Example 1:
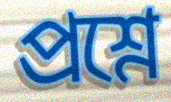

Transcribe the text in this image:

প্ৰশ্নে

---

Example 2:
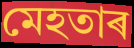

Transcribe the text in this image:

মেহতাৰ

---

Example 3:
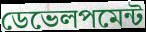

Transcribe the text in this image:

ডেভেলপমেন্ট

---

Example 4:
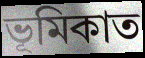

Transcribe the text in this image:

ভূমিকাত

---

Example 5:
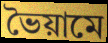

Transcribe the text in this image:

ভৈয়ামে